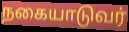
நகையாடுவர்